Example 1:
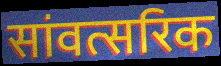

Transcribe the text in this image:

सांवत्सरिक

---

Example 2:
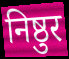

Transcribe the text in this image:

निष्ठुर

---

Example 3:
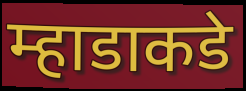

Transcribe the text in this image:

म्हाडाकडे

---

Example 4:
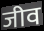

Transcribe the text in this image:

जीव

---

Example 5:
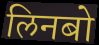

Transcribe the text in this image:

लिनबो